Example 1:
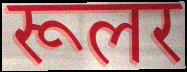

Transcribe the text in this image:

रूलर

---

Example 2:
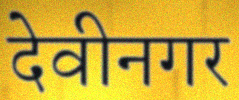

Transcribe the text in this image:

देवीनगर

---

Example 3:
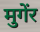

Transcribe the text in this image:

मुगेंर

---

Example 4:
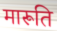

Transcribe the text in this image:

मारूति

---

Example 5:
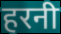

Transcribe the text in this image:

हरनी